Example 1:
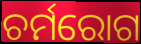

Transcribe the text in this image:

ଚର୍ମରୋଗ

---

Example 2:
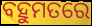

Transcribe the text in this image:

ବହୁମତରେ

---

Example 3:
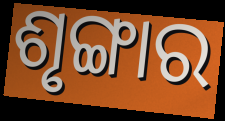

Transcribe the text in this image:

ଶୃଙ୍ଗାର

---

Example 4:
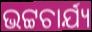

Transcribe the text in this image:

ଭଟ୍ଟଚାର୍ଯ୍ୟ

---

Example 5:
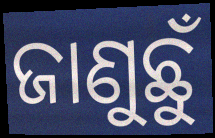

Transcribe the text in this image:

ଜାଣୁଛୁଁ